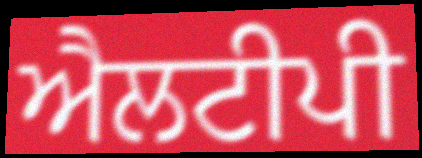
ਐਲਟੀਪੀ